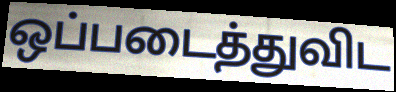
ஒப்படைத்துவிட